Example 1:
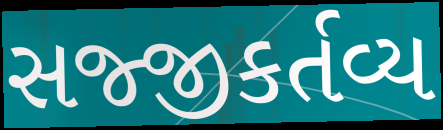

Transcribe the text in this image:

સજ્જીકર્તવ્ય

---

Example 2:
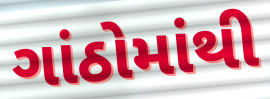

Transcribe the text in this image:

ગાંઠોમાંથી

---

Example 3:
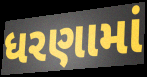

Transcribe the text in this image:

ધરણામાં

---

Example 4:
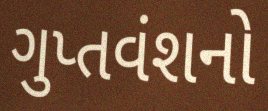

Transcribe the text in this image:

ગુપ્તવંશનો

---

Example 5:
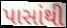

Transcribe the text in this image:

પાસાંથી